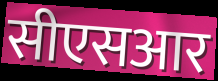
सीएसआर